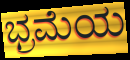
ಭ್ರಮೆಯ